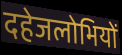
दहेजलोभियों